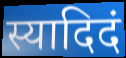
स्यादिदं